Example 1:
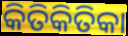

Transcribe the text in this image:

କିତିକିତିକା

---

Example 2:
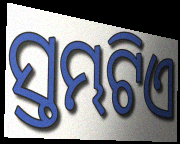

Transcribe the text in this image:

ସ୍ତମ୍ଭଟିଏ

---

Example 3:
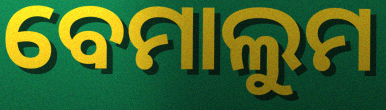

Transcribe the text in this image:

ବେମାଲୁମ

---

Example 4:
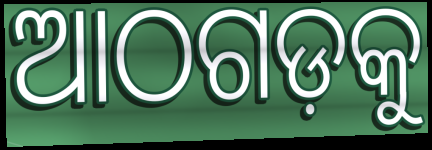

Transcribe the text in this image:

ଆଠଗଡ଼କୁ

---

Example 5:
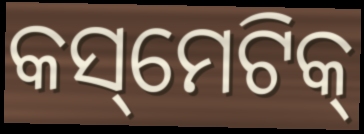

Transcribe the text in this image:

କସ୍‌ମେଟିକ୍